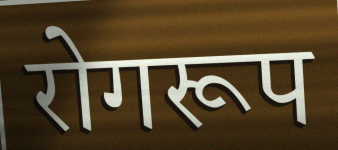
रोगरूप